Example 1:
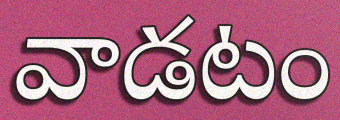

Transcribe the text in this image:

వాడటం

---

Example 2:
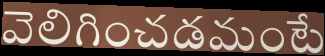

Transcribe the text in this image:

వెలిగించడమంటే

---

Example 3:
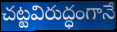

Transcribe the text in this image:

చట్టవిరుద్ధంగానే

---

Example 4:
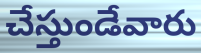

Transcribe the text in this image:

చేస్తుండేవారు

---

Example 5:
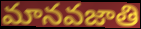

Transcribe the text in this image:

మానవజాతి